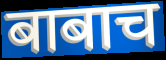
बाबाच